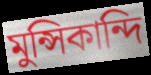
মুন্সিকান্দি